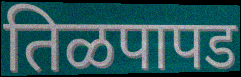
तिळपापड